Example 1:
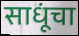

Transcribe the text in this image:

साधूंचा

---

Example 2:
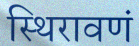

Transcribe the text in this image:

स्थिरावणं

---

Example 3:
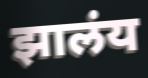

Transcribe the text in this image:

झालंय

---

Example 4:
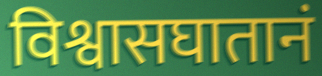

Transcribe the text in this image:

विश्वासघातानं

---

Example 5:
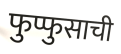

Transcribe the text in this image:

फुप्फुसाची